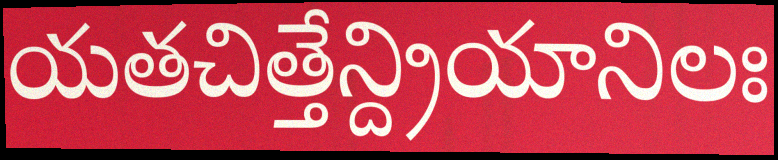
యతచిత్తేన్ద్రియానిలః